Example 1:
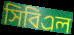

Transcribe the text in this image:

সিবিএল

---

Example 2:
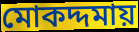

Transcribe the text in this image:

মোকদ্দমায়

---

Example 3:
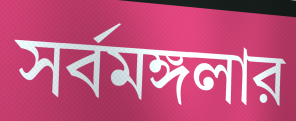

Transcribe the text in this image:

সর্বমঙ্গলার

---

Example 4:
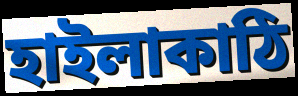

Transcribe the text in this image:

হাইলাকাঠি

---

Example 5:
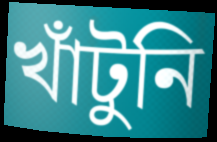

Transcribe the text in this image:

খাঁটুনি